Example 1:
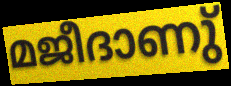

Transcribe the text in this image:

മജീദാണു്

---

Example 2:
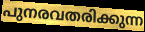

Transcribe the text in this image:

പുനരവതരിക്കുന്ന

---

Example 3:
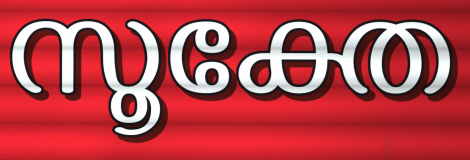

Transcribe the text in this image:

സൂക്തേ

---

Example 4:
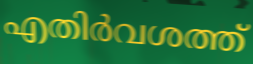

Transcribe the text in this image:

എതിർവശത്ത്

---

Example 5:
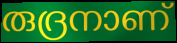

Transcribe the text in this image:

രുദ്രനാണ്